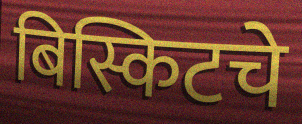
बिस्किटचे